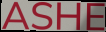
ASHE